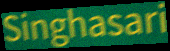
Singhasari